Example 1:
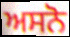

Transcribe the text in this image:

ਅਸਨੋ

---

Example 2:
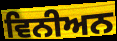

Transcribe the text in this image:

ਵਿਨੀਅਨ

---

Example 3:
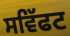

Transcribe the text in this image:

ਸਵਿੱਫਟ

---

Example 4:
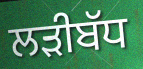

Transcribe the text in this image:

ਲੜੀਬੱਧ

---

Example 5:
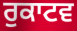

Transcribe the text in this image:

ਰੁਕਾਟਵ